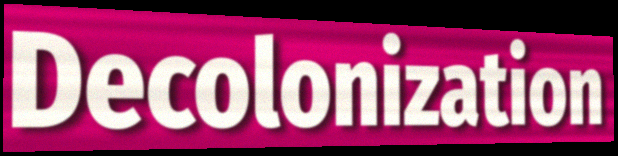
Decolonization